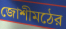
জোশীমঠের